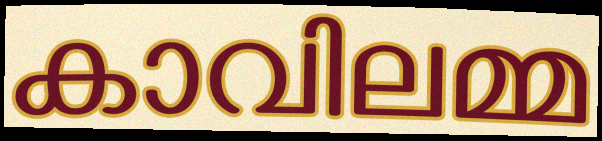
കാവിലമ്മ